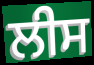
ਲੀਸ